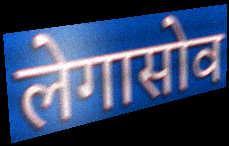
लेगासोव